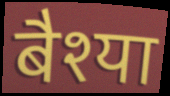
बैश्या